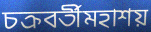
চক্রবর্তীমহাশয়